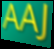
AAJ